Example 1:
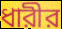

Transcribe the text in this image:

ধারীর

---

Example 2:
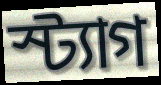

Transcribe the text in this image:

স্ট্যাগ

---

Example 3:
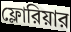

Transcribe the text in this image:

ফ্লোরিয়ার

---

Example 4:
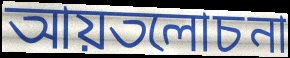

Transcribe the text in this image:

আয়তলোচনা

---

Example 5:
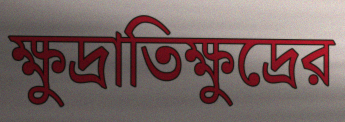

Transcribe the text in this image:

ক্ষুদ্রাতিক্ষুদ্রের